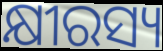
କ୍ଷୀରସ୍ୟ